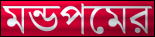
মন্ডপমের